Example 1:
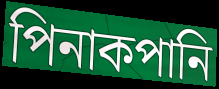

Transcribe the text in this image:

পিনাকপানি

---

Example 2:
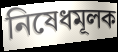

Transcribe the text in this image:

নিষেধমূলক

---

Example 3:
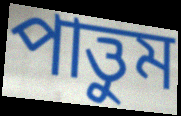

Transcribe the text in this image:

পাত্তুম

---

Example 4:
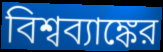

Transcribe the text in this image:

বিশ্বব্যাঙ্কের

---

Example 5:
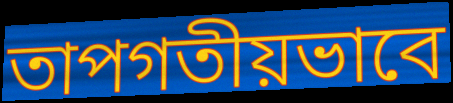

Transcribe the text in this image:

তাপগতীয়ভাবে